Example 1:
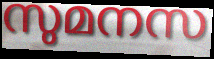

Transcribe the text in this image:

സുമനസ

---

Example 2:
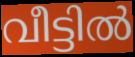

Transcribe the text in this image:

വീട്ടിൽ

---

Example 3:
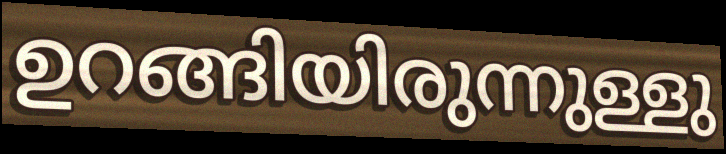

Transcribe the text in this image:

ഉറങ്ങിയിരുന്നുള്ളു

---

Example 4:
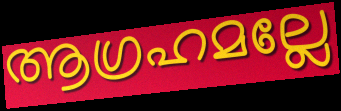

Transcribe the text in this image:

ആഗ്രഹമല്ലേ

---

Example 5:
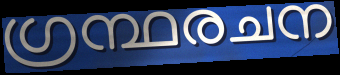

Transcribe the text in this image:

ഗ്രന്ഥരചന